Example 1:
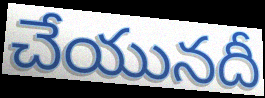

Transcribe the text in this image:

చేయునదీ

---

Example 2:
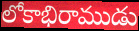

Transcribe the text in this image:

లోకాభిరాముడు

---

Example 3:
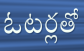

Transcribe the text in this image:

ఓటర్లతో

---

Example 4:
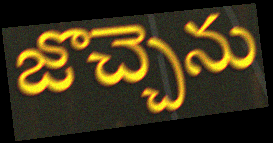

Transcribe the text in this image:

జొచ్చెను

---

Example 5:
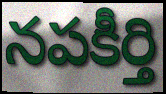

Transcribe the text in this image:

నపకీర్తి